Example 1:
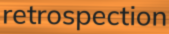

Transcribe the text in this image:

retrospection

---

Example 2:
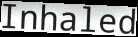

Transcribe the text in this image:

Inhaled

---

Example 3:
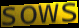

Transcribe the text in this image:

sows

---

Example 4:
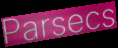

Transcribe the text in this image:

Parsecs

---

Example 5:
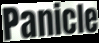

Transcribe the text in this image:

Panicle